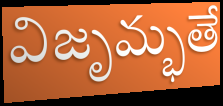
విజృమ్భతే